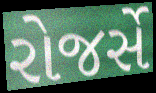
રોજર્સે